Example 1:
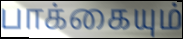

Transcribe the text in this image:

பாக்கையும்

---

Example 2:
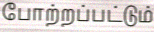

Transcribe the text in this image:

போற்றப்பட்டும்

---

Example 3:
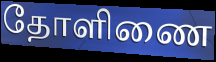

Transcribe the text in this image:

தோளிணை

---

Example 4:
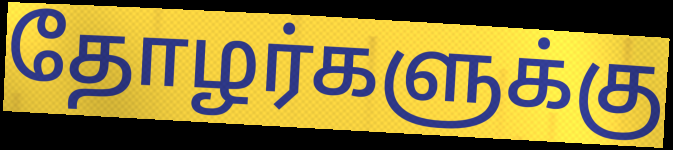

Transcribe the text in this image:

தோழர்களுக்கு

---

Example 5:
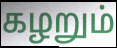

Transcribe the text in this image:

கழறும்